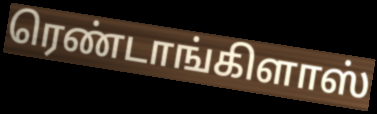
ரெண்டாங்கிளாஸ்